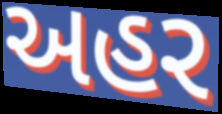
અહર